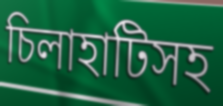
চিলাহাটিসহ